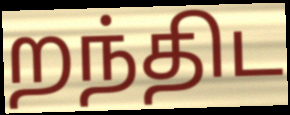
றந்திட